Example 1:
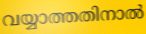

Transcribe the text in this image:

വയ്യാത്തതിനാൽ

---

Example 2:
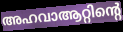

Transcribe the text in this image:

അഹവാആറ്റിന്റെ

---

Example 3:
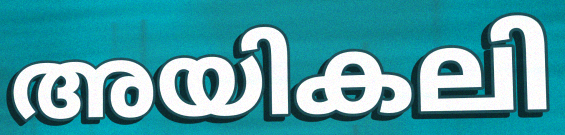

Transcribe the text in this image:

അയികലി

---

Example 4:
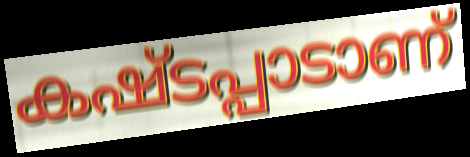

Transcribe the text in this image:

കഷ്ടപ്പാടാണ്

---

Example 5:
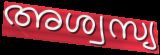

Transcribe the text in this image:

അശ്വസ്യ